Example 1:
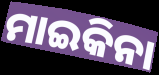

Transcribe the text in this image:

ମାଇକିନା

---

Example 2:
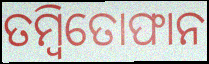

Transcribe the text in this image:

ତମ୍ବିତୋଫାନ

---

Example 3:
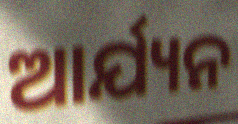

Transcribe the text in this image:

ଆର୍ଯ୍ୟନ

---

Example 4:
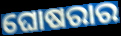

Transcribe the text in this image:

ଘୋଷରାର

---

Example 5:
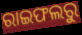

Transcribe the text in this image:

ରାଇଫଲରୁ